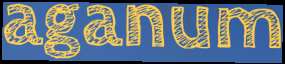
aganum